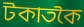
টকাতকৈ